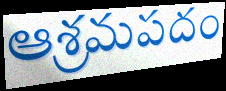
ఆశ్రమపదం